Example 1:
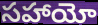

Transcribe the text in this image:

సహాయో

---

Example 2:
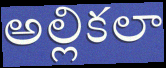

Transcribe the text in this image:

అల్లికలా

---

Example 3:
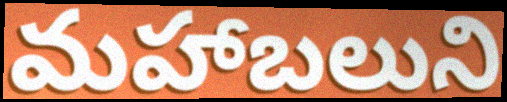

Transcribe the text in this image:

మహాబలుని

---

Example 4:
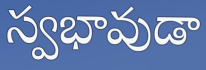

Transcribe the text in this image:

స్వభావుడా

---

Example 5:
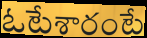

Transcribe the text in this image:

ఓటేశారంటే